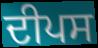
ਦੀਪਸ